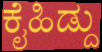
ಕೈಹಿಡ್ದು